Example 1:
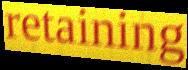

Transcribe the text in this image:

retaining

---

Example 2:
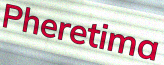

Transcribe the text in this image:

Pheretima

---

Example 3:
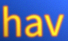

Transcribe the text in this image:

hav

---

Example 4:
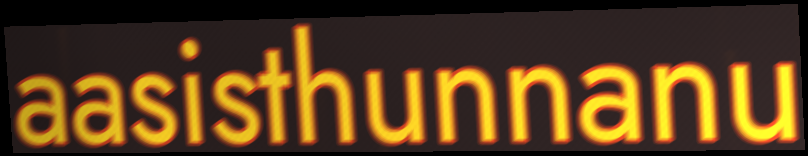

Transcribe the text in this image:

aasisthunnanu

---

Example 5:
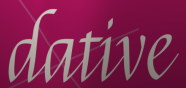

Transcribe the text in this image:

dative